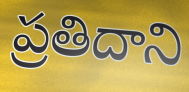
ప్రతిదాని